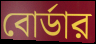
বোর্ডার